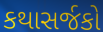
કથાસર્જકો